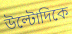
উল্টোদিকে